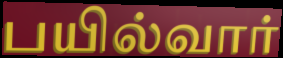
பயில்வார்